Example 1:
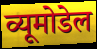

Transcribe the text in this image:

व्यूमोडेल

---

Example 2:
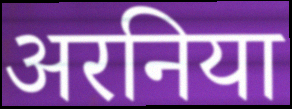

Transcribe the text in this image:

अरनिया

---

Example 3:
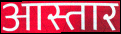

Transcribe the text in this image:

आस्तार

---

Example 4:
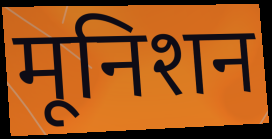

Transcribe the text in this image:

मूनिशन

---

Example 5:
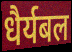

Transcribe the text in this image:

धैर्यबल